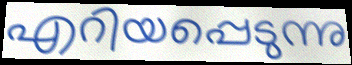
എറിയപ്പെടുന്നു